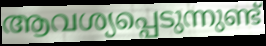
ആവശ്യപ്പെടുന്നുണ്ട്